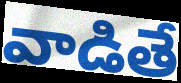
వాడితే